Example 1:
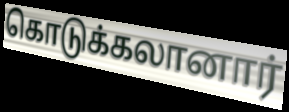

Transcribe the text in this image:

கொடுக்கலானார்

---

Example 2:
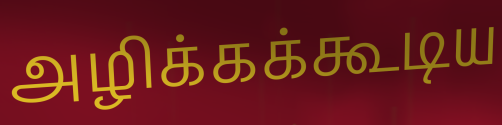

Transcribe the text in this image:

அழிக்கக்கூடிய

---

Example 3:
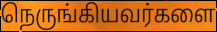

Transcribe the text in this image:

நெருங்கியவர்களை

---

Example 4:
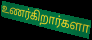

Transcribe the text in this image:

உணர்கிறார்களா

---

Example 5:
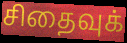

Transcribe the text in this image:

சிதைவுக்